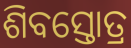
ଶିବସ୍ତୋତ୍ର